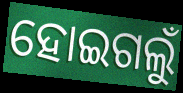
ହୋଇଗଲୁଁ